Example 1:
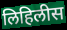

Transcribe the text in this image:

लिहिलीस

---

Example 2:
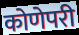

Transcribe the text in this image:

कोणेपरी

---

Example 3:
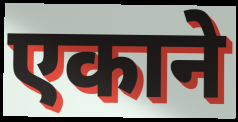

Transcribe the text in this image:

एकाने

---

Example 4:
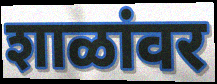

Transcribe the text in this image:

शाळांवर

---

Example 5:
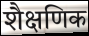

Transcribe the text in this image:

शैक्षणिक